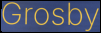
Grosby